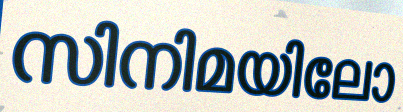
സിനിമയിലോ